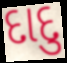
દાદુ